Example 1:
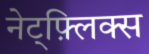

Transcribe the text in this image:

नेट्फ़्लिक्स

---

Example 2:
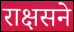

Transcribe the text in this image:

राक्षसने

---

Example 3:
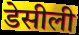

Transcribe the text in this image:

डेसीली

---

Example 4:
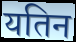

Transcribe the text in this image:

यतिन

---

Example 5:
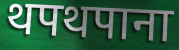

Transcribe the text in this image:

थपथपाना